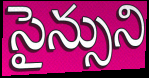
సైన్సుని